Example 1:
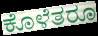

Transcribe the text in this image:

ಕೊಳೆತರೂ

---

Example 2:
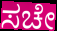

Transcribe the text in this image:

ಸಚೇ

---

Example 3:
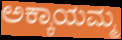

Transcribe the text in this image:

ಅಕ್ಕಾಯಮ್ಮ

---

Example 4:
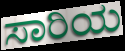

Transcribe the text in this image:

ಸಾರಿಯ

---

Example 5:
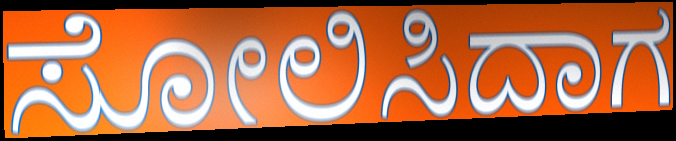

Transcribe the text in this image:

ಸೋಲಿಸಿದಾಗ